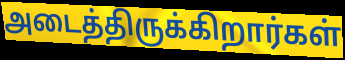
அடைத்திருக்கிறார்கள்